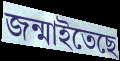
জন্মাইতেছে